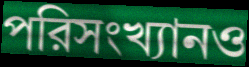
পরিসংখ্যানও